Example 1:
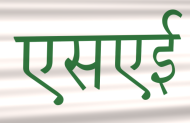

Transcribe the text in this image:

एसएई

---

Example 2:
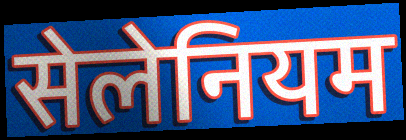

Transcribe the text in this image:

सेलेनियम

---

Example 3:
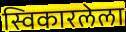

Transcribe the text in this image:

स्विकारलेला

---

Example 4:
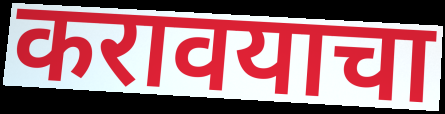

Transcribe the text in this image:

करावयाचा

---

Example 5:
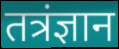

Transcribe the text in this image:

तत्रंज्ञान